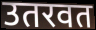
उतरवत